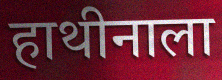
हाथीनाला